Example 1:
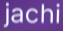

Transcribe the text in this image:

jachi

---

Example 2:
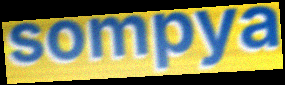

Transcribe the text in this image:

sompya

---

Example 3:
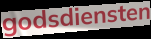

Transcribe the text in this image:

godsdiensten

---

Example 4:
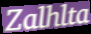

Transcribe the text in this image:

Zalhlta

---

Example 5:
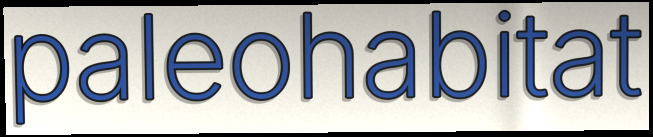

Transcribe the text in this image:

paleohabitat